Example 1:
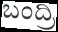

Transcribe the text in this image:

ಬಂದ್ರಿ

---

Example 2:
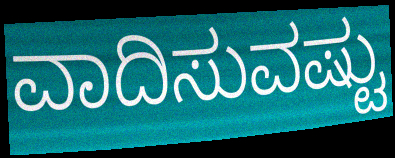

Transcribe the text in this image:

ವಾದಿಸುವಷ್ಟು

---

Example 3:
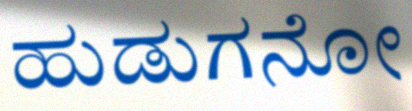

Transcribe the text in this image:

ಹುಡುಗನೋ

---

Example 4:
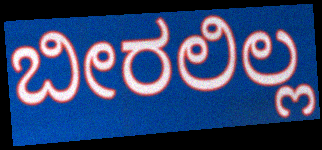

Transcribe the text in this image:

ಬೀರಲಿಲ್ಲ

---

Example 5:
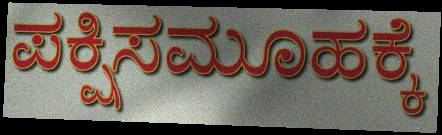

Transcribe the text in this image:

ಪಕ್ಷಿಸಮೂಹಕ್ಕೆ